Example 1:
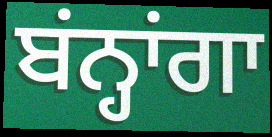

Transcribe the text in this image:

ਬਂਨ੍ਹਾਂਗਾ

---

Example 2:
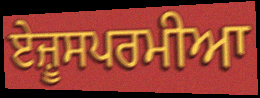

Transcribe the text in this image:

ਏਜ਼ੂਸਪਰਮੀਆ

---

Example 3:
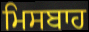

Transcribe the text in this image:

ਮਿਸਬਾਹ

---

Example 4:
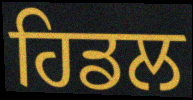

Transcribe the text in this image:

ਹਿਡਲ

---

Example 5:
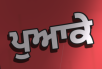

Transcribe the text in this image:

ਪੁਆਕੇ